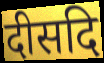
दीसदि